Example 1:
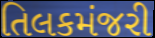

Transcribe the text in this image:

તિલકમંજરી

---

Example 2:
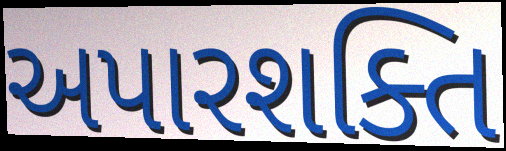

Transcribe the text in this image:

અપારશક્તિ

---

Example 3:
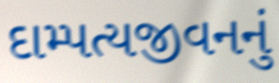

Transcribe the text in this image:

દામ્પત્યજીવનનું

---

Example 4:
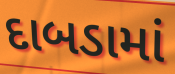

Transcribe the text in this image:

દાબડામાં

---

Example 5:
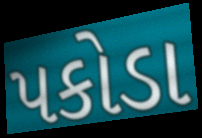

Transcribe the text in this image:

પકોડા